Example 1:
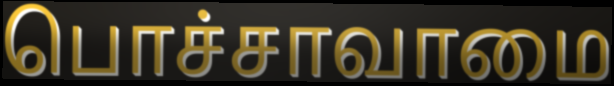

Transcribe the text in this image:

பொச்சாவாமை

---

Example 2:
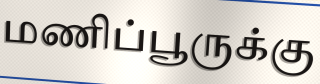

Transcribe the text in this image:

மணிப்பூருக்கு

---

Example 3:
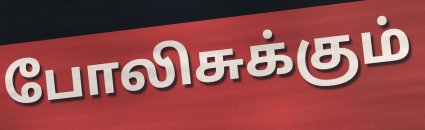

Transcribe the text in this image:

போலிசுக்கும்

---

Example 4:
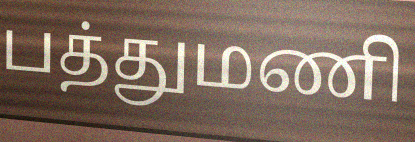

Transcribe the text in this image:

பத்துமணி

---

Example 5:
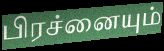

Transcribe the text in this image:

பிரச்னையும்